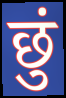
छुं